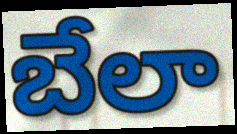
బేలా